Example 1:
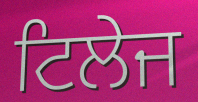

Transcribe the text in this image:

ਟਿਲੇਜ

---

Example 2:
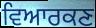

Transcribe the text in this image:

ਵਿਆਰਕਣ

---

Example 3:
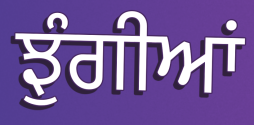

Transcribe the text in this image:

ਝੁੰਗੀਆਂ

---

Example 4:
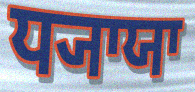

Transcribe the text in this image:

ਧ੍ਯਾਯਾ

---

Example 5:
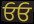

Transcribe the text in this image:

ਓਓ